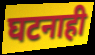
घटनाही